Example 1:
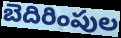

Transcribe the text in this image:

బెదిరింపుల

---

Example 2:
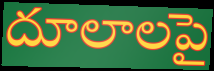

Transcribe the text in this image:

దూలాలపై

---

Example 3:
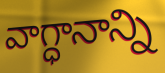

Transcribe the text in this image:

వాగ్ధానాన్ని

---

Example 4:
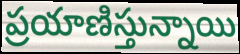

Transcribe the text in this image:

ప్రయాణిస్తున్నాయి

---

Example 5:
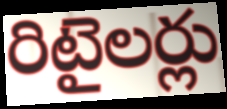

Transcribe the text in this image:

రిటైలర్లు